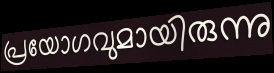
പ്രയോഗവുമായിരുന്നു